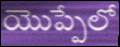
యొప్పేలో